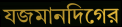
যজমানদিগের